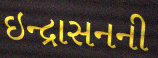
ઇન્દ્રાસનની